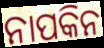
ନାପକିନ